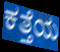
ಕತ್ತೆಯ